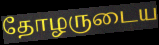
தோழருடைய